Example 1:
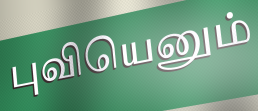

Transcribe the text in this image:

புவியெனும்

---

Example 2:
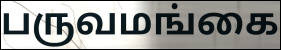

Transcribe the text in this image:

பருவமங்கை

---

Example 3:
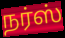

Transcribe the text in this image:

நர்ஸ்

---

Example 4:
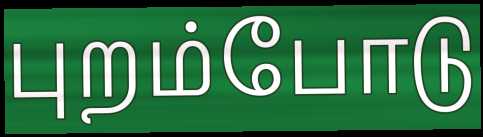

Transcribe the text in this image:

புறம்போடு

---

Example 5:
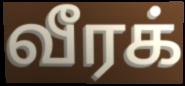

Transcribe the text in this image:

வீரக்